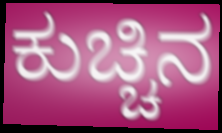
ಕುಚ್ಚಿನ